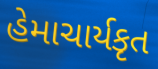
હેમાચાર્યકૃત